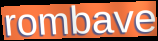
rombave